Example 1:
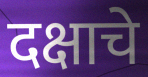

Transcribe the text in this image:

दक्षाचे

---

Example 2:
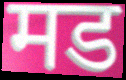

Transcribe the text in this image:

मड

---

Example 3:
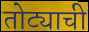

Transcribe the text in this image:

तोट्याची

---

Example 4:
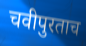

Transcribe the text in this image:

चवीपुरताच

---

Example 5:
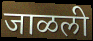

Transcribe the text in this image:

जाळली